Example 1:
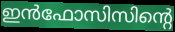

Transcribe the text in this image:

ഇൻഫോസിസിന്റെ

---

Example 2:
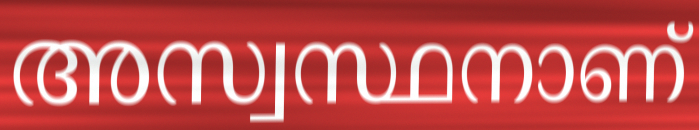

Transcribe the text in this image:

അസ്വസ്ഥനാണ്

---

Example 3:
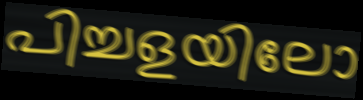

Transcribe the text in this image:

പിച്ചളയിലോ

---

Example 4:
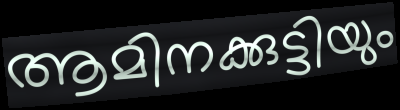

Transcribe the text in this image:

ആമിനക്കുട്ടിയും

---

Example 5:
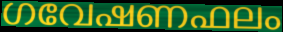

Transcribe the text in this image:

ഗവേഷണഫലം